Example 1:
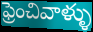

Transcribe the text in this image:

ఫ్రెంచివాళ్ళు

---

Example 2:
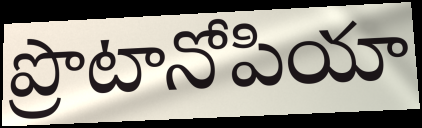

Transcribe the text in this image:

ప్రొటానోపియా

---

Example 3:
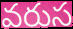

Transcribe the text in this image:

వరుస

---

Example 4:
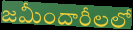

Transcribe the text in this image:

జమీందారీలలో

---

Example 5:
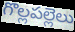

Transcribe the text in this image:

గొల్లపల్లెలు